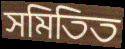
সমিতিত